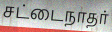
சட்டைநாதர்